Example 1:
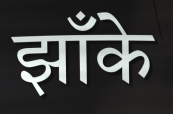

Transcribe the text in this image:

झाँके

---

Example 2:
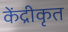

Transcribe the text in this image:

केंद्रीकृत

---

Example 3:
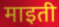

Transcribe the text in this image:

माइती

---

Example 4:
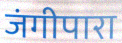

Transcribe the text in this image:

जंगीपारा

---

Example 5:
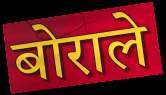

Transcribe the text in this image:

बोराले